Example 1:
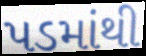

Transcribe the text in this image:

પડમાંથી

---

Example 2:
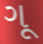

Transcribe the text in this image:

ગૂ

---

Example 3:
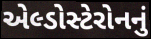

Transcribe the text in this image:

એલ્ડોસ્ટેરોનનું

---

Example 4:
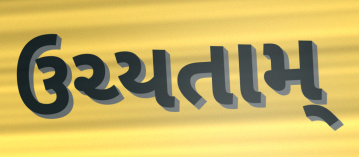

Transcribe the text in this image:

ઉચ્યતામ્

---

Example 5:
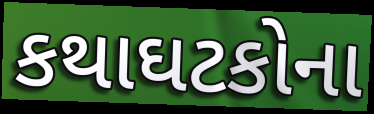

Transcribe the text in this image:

કથાઘટકોના